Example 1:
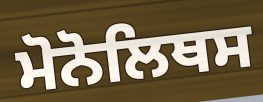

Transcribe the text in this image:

ਮੋਨੋਲਿਥਸ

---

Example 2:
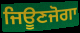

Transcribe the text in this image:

ਜਿਊਣਜੋਗਾ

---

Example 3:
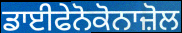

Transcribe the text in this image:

ਡਾਈਫੇਨੋਕੋਨਾਜ਼ੋਲ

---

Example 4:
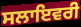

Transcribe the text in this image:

ਸਲਾਇਵਰੀ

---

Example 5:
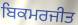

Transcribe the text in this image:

ਬਿਕਮਰਜੀਤ